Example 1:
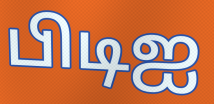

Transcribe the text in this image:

பிடிஐ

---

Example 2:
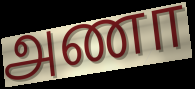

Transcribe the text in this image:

அணா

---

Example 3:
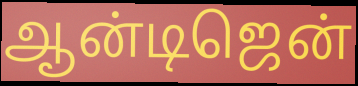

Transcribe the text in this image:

ஆன்டிஜென்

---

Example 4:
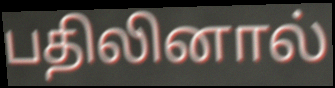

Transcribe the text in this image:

பதிலினால்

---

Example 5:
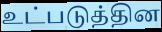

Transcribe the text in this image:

உட்படுத்தின